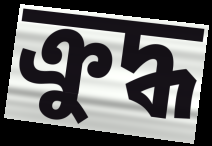
ক্রুদ্ধ